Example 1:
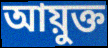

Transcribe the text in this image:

আয়ুক্ত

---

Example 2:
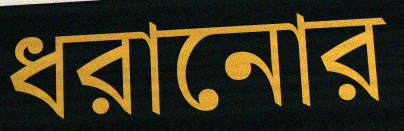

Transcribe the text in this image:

ধরানোর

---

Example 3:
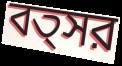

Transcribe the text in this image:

বত্সর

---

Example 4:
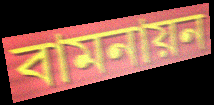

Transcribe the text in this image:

বামনায়ন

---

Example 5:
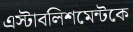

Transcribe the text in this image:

এস্টাবলিশমেন্টকে